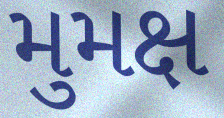
મુમક્ષ